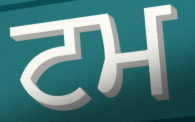
ਟਮ